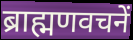
ब्राह्मणवचनें